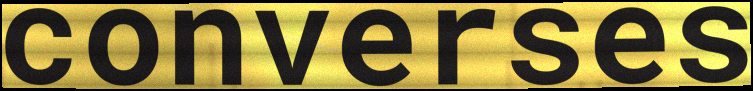
converses